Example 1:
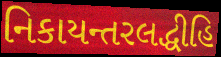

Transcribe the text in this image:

નિકાયન્તરલદ્ધીહિ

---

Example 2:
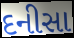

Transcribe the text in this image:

દનીસા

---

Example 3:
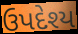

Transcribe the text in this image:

ઉપદેશ્ય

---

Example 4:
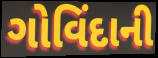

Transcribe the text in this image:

ગોવિંદાની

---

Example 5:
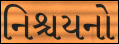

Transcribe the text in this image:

નિશ્ચયનો